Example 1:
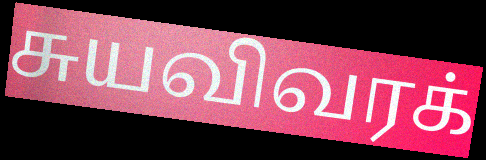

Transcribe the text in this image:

சுயவிவரக்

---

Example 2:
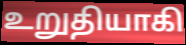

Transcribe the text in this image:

உறுதியாகி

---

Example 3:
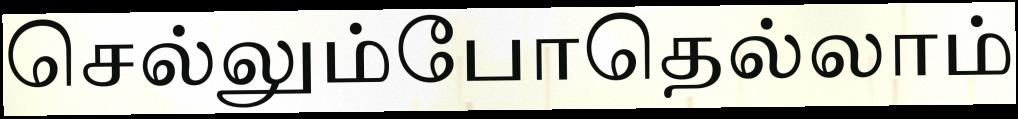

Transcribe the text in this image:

செல்லும்போதெல்லாம்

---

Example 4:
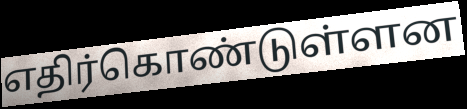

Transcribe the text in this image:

எதிர்கொண்டுள்ளன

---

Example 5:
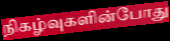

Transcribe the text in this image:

நிகழ்வுகளின்போது